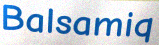
Balsamiq